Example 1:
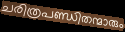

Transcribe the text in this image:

ചരിത്രപണ്ഡിതന്മാരും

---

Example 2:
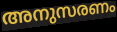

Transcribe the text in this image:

അനുസരണം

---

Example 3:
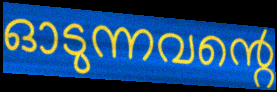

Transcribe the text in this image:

ഓടുന്നവന്റെ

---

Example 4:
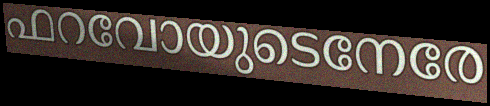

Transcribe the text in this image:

ഫറവോയുടെനേരേ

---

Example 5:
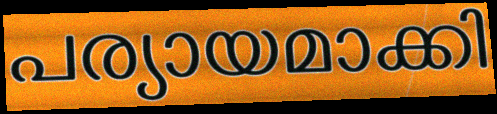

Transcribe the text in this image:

പര്യായമാക്കി